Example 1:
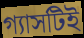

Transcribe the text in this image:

গ্যাসটিই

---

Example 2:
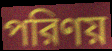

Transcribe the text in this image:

পরিণয়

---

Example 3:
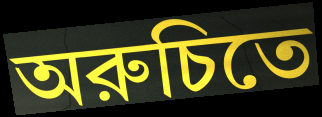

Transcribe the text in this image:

অরুচিতে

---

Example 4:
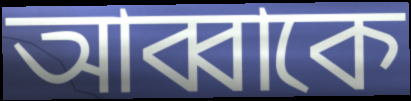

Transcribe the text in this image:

আব্বাকে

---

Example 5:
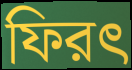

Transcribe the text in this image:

ফিরৎ